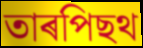
তাৰপিছথ